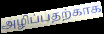
அழிப்பதற்காக